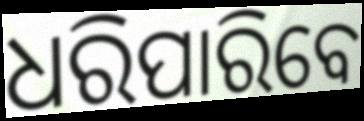
ଧରିପାରିବେ